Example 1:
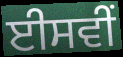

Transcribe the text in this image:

ਈਸਵੀਂ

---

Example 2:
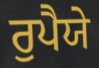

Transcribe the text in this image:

ਰੁਪੈਯੇ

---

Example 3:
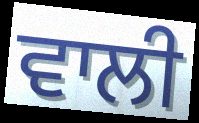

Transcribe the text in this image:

ਵਾਲੀ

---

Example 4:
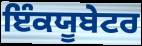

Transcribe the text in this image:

ਇੰਕਯੂਬੇਟਰ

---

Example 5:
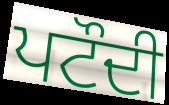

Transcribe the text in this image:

ਪਟੌਦੀ